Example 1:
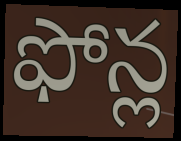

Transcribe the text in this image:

ఫోన్ల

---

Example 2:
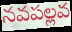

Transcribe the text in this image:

నవపల్లవ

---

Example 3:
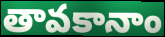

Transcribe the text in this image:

తావకానాం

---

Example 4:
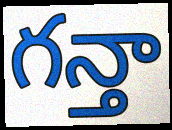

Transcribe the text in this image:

గన్తా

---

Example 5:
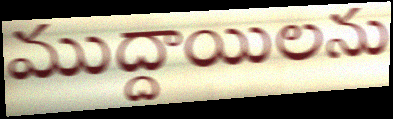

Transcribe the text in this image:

ముద్దాయిలను